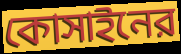
কোসাইনের